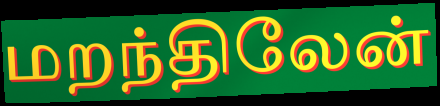
மறந்திலேன்